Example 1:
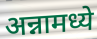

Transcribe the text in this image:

अन्नामध्ये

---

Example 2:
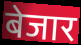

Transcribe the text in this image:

बेजार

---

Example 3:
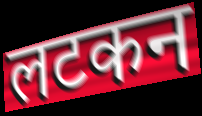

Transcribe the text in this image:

लटकन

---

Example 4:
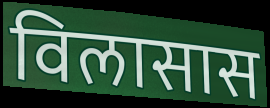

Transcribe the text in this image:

विलासास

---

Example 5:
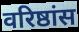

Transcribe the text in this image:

वरिष्ठांस